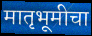
मातृभूमीचा